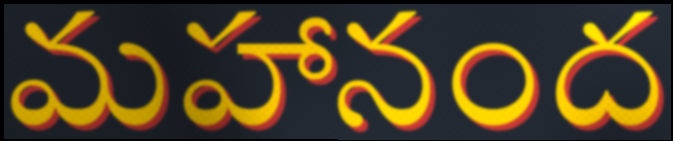
మహానంద